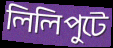
লিলিপুটে